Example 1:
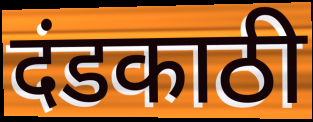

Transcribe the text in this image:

दंडकाठी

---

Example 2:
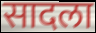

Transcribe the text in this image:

सादला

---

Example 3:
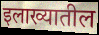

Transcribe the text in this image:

इलाख्यातील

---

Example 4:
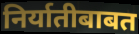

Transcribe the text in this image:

निर्यातीबाबत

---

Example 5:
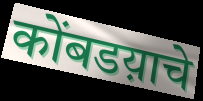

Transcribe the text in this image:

कोंबडय़ाचे